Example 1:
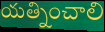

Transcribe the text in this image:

యత్నించాలి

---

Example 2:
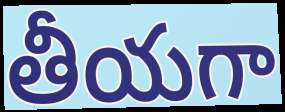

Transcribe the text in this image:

తీయగా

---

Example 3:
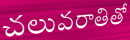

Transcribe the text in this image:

చలువరాతితో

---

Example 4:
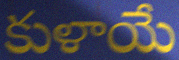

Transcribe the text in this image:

కుళాయే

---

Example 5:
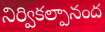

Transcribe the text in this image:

నిర్వికల్పానంద